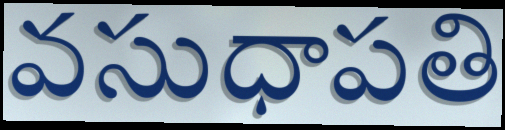
వసుధాపతి